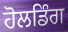
ਹੋਲਡਿੰਗ